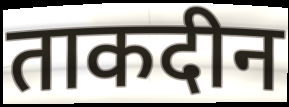
ताकदीन